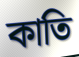
কাতি